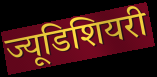
ज्यूडिशियरी